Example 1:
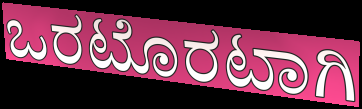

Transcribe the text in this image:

ಒರಟೊರಟಾಗಿ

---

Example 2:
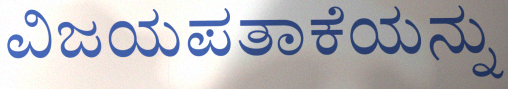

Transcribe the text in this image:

ವಿಜಯಪತಾಕೆಯನ್ನು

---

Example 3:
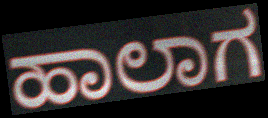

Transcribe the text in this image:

ಹಾಲಾಗ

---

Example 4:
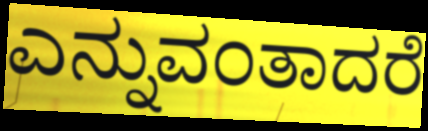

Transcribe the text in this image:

ಎನ್ನುವಂತಾದರೆ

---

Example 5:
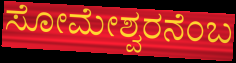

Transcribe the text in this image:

ಸೋಮೇಶ್ವರನೆಂಬ